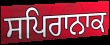
ਸਪਿਰਾਨਾਕ